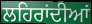
ਲਹਿਰਾਂਦੀਆਂ